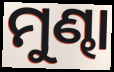
ମୁଣ୍ଢା